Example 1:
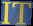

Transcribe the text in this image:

IT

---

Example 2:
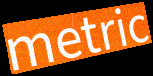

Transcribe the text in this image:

metric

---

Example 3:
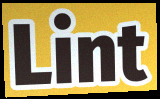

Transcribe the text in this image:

Lint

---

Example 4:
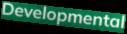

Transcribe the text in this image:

Developmental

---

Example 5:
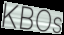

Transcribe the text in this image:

KBOs